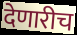
देणारीच